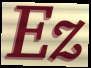
Ez